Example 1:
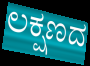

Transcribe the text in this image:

ಲಕ್ಷಣದ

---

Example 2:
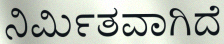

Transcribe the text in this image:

ನಿರ್ಮಿತವಾಗಿದೆ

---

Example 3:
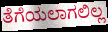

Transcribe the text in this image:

ತೆಗೆಯಲಾಗಲಿಲ್ಲ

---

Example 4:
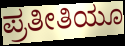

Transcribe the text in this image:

ಪ್ರತೀತಿಯೂ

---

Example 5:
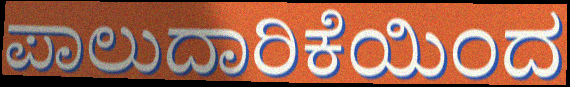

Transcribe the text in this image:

ಪಾಲುದಾರಿಕೆಯಿಂದ